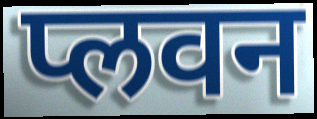
प्लवन